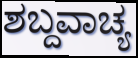
ಶಬ್ದವಾಚ್ಯ